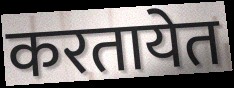
करतायेत